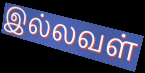
இல்லவள்